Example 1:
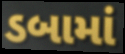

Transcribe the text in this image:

ડબામાં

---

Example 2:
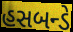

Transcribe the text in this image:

હસબન્ડે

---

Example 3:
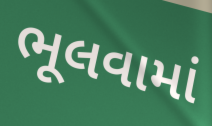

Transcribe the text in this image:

ભૂલવામાં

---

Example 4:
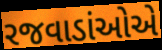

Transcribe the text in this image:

રજવાડાંઓએ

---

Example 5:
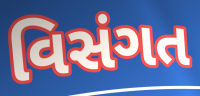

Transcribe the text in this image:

વિસંગત